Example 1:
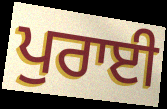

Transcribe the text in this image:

ਪੁਰਾਈ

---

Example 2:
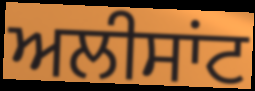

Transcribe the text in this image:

ਅਲੀਸਾਂਟ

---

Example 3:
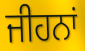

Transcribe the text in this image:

ਜੀਹਨਾਂ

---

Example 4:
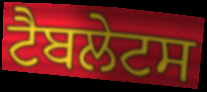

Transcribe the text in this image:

ਟੈਬਲੇਟਸ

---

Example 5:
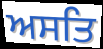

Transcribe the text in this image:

ਅਸਤਿ